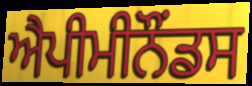
ਐਪੀਮੀਨੌਂਡਸ